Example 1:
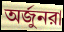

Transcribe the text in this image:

অর্জুনরা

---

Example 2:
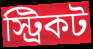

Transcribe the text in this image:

স্ট্রিকট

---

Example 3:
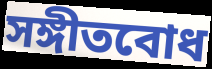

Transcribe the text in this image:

সঙ্গীতবোধ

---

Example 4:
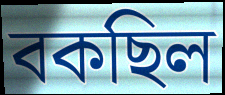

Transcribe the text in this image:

বকছিল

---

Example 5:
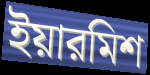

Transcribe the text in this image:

ইয়ারমিশ